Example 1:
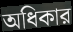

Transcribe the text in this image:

অধিকার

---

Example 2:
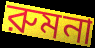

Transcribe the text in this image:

রুমনা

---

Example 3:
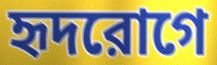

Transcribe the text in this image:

হৃদরোগে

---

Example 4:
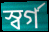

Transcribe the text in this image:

স্বর্গ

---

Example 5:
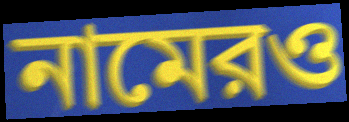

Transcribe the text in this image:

নামেরও